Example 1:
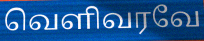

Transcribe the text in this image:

வெளிவரவே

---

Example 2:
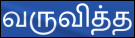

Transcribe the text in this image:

வருவித்த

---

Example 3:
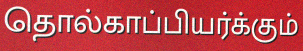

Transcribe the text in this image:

தொல்காப்பியர்க்கும்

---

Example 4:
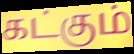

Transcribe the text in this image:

கட்கும்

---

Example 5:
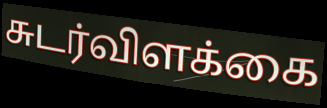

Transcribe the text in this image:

சுடர்விளக்கை